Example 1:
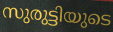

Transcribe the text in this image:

സുരുട്ടിയുടെ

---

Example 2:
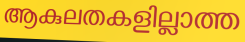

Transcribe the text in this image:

ആകുലതകളില്ലാത്ത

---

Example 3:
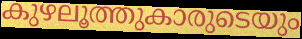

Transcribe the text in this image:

കുഴലൂത്തുകാരുടെയും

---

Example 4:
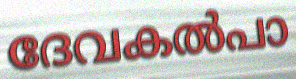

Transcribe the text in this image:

ദേവകൽപാ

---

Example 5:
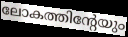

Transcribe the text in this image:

ലോകത്തിന്റേയും